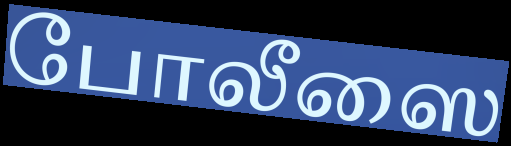
போலீஸை